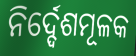
ନିର୍ଦ୍ଦେଶମୂଳକ